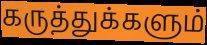
கருத்துக்களும்